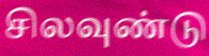
சிலவுண்டு